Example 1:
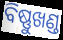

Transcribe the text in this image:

ବିଷ୍ଣୁଖଣ୍ଡ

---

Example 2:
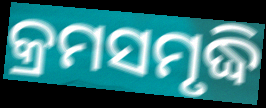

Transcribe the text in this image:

କ୍ରମସମୃଦ୍ଧି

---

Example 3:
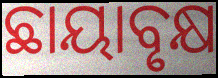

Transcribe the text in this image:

ଛାୟାବୃକ୍ଷ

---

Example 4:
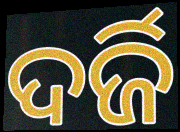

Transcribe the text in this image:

ଦର୍ଜି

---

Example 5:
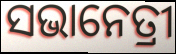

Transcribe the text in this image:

ସଭାନେତ୍ରୀ